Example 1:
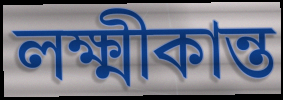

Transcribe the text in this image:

লক্ষ্মীকান্ত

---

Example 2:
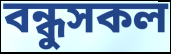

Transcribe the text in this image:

বন্ধুসকল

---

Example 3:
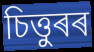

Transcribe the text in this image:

চিত্তুৰৰ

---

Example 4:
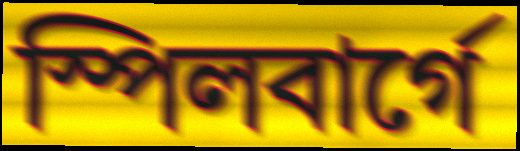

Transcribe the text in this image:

স্পিলবাৰ্গে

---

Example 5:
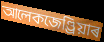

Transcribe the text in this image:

আলেকজেণ্ড্ৰিয়াৰ